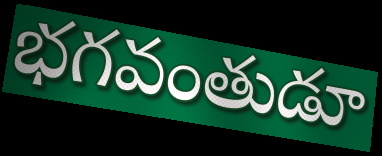
భగవంతుడూ